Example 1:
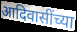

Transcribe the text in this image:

आदिवासींच्या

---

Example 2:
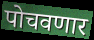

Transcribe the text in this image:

पोचवणार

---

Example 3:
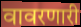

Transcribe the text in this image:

वावरणारी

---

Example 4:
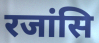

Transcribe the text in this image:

रजांसि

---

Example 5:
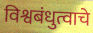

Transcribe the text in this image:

विश्वबंधुत्वाचे